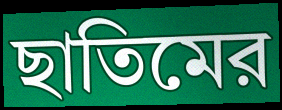
ছাতিমের